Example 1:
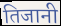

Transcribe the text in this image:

तिजानी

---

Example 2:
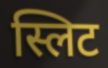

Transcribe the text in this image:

स्लिट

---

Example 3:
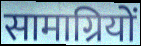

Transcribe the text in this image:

सामाग्रियों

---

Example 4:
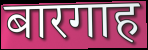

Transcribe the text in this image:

बारगाह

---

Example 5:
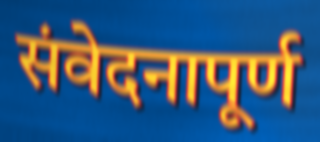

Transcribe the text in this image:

संवेदनापूर्ण